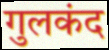
गुलकंद